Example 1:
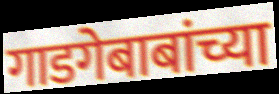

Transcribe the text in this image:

गाडगेबाबांच्या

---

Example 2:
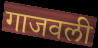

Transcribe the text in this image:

गाजवली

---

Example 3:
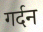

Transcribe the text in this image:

गर्दन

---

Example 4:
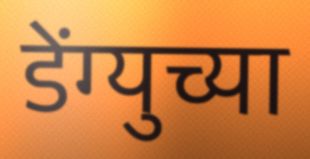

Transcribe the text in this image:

डेंग्युच्या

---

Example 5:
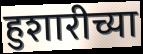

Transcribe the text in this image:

हुशारीच्या